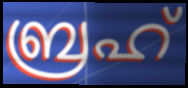
ബ്രഹ്